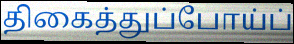
திகைத்துப்போய்ப்